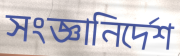
সংজ্ঞানির্দেশ